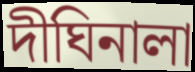
দীঘিনালা